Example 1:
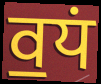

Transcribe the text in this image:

व॒यं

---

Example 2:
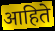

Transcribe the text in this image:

आहिते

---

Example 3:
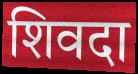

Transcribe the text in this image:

शिवदा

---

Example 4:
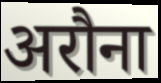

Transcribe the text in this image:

अरौना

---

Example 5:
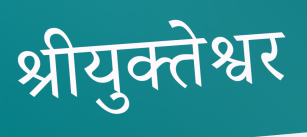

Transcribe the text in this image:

श्रीयुक्तेश्वर